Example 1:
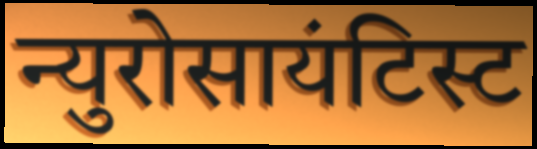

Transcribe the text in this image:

न्युरोसायंटिस्ट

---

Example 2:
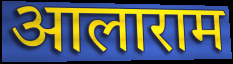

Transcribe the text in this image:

आलाराम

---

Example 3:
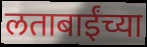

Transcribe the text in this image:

लताबाईंच्या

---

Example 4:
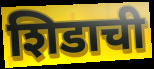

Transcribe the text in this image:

शिडाची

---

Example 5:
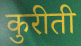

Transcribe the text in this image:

कुरीती